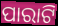
ପାରାଟି